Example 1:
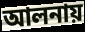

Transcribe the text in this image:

আলনায়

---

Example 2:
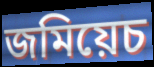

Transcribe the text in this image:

জমিয়েচ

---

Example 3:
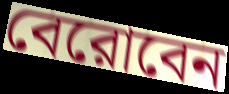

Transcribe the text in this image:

বেরোবেন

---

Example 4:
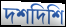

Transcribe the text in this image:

দশদিশি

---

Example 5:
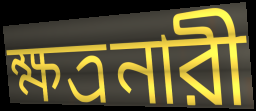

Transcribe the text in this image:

ক্ষত্রনারী